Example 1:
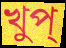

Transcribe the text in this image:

খুপ্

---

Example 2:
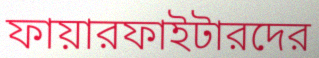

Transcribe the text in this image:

ফায়ারফাইটারদের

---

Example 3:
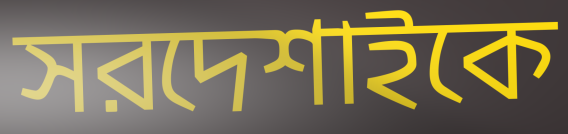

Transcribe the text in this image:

সরদেশাইকে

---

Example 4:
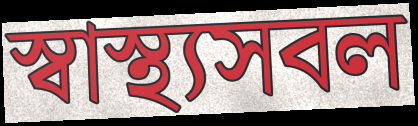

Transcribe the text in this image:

স্বাস্থ্যসবল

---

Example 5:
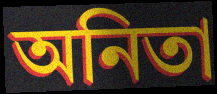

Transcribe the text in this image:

অনিতা